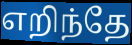
எறிந்தே